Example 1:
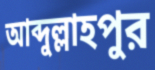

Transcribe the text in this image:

আব্দুল্লাহপুর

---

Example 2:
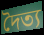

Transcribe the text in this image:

দৈত্য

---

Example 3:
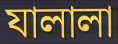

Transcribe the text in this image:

যালালা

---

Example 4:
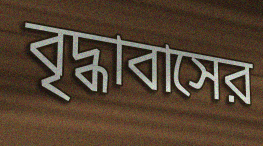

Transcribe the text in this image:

বৃদ্ধাবাসের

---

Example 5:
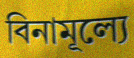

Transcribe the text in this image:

বিনামূল্যে